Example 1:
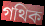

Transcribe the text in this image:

গথিক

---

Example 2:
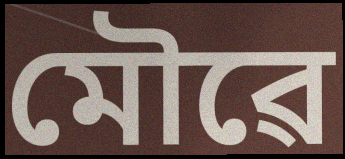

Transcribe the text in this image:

মৌৱে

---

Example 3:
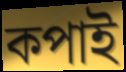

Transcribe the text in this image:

কপাই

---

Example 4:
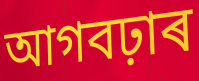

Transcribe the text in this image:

আগবঢ়াৰ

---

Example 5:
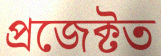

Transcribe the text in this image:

প্ৰজেক্টত